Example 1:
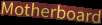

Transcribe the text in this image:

Motherboard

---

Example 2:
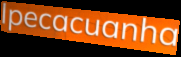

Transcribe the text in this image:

Ipecacuanha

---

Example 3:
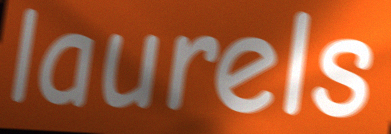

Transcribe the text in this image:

laurels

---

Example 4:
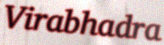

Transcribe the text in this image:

Virabhadra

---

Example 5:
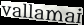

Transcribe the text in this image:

vallamai